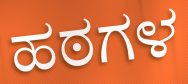
ಹಠಗಳ